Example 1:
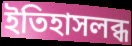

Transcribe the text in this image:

ইতিহাসলব্ধ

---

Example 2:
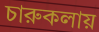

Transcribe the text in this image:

চারুকলায়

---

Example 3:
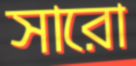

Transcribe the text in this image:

সারো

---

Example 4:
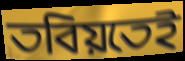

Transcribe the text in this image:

তবিয়তেই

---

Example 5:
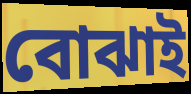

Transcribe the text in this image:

বোঝাই